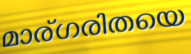
മാര്ഗരിതയെ